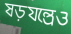
ষড়যন্ত্রেও